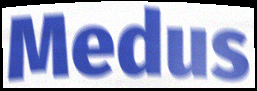
Medus